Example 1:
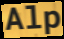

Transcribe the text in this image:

Alp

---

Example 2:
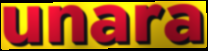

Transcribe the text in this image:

unara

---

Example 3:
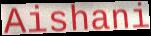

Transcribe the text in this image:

Aishani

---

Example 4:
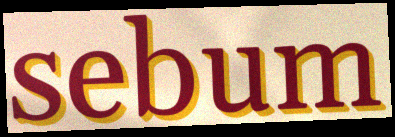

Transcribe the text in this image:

sebum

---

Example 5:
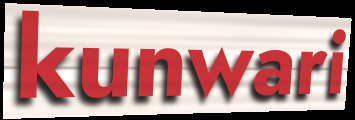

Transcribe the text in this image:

kunwari